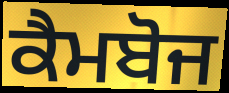
ਕੈਮਬੋਜ